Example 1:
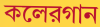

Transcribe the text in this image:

কলেরগান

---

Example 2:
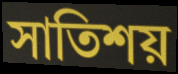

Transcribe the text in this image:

সাতিশয়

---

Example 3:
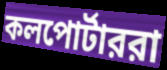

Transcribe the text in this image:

কলপোর্টাররা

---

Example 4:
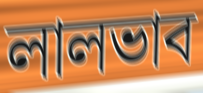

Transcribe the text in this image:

লালভাব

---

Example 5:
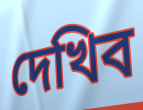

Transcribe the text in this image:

দেখিব